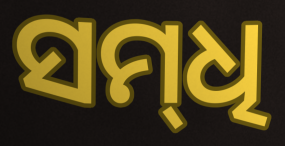
ସମ୍‌ଧି